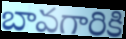
బావగారికి